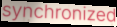
synchronized